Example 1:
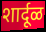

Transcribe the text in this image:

शार्दूळ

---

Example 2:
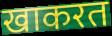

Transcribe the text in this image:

खाकरत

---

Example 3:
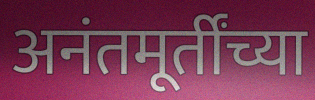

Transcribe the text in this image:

अनंतमूर्तींच्या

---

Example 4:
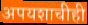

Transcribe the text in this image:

अपयशाचीही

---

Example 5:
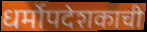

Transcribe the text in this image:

धर्मोपदेशकाची